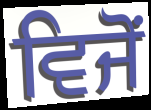
ਵਿਜੋਂ